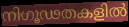
നിഗൂഢതകളിൽ